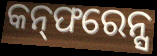
କନ୍‌ଫରେନ୍ସ